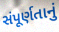
સંપૂર્ણતાનું